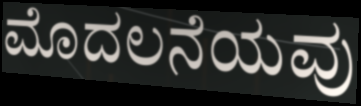
ಮೊದಲನೆಯವು